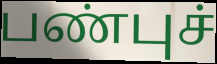
பண்புச்